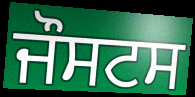
ਜੌਸਟਸ